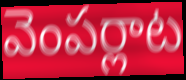
వెంపర్లాట